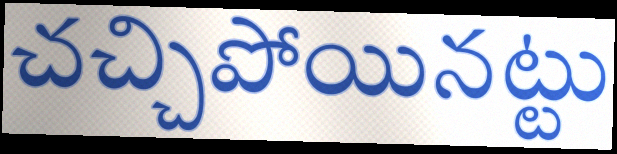
చచ్చిపోయినట్టు